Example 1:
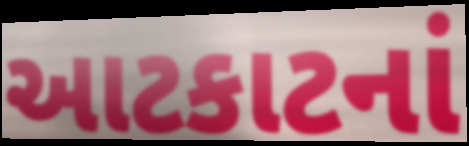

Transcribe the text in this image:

આટકાટનાં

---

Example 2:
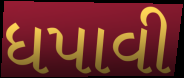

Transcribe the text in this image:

ધપાવી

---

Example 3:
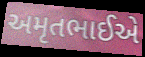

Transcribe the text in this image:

અમૃતભાઈએ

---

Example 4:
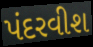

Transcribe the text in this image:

પંદરવીશ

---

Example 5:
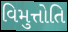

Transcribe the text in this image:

વિમુત્તોતિ